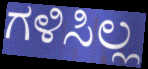
ಗಳಿಸಿಲ್ಲ